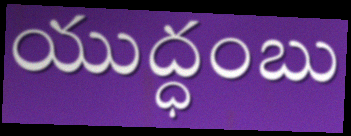
యుద్ధంబు